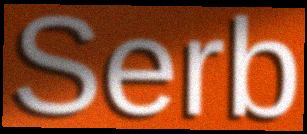
Serb